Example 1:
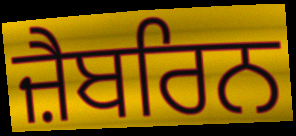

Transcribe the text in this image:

ਜ਼ੈਬਰਿਨ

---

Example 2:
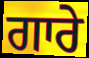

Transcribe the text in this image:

ਗਾਰੇ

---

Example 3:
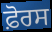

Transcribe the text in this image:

ਫ਼ੋਰਸ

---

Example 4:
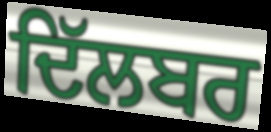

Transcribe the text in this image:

ਦਿੱਲਬਰ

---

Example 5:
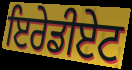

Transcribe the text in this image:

ਇਰੇਡੀਏਟ